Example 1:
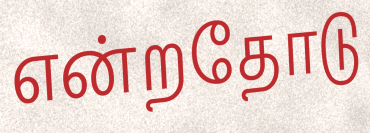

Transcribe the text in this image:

என்றதோடு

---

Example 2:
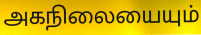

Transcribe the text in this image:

அகநிலையையும்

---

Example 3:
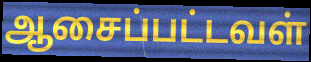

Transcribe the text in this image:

ஆசைப்பட்டவள்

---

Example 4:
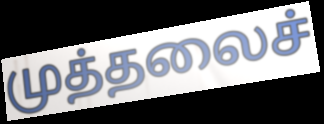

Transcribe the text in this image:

முத்தலைச்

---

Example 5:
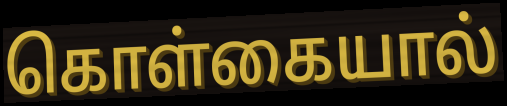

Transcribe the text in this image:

கொள்கையால்